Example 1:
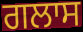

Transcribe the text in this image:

ਗਲਾਸ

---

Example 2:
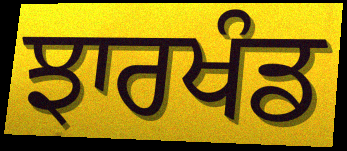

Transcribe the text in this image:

ਝਾਰਖੰਡ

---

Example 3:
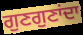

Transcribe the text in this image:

ਗੁਣਗੁਣਾਂਦਾ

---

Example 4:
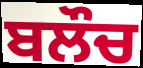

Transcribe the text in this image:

ਬਲੌਚ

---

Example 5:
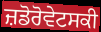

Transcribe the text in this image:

ਜ਼ਡੋਰੋਵੇਟਸਕੀ